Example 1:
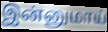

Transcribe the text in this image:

இன்னுமாய்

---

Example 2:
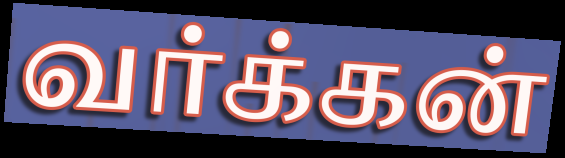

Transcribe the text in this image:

வர்க்கன்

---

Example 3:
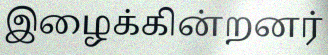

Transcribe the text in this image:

இழைக்கின்றனர்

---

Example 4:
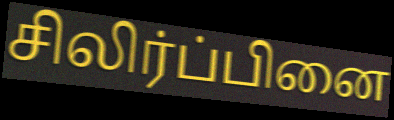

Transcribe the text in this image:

சிலிர்ப்பினை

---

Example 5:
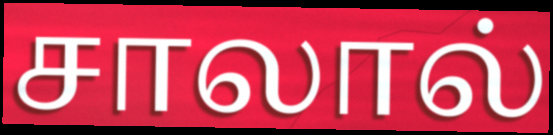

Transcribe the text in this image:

சாலால்